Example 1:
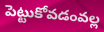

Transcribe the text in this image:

పెట్టుకోవడంవల్ల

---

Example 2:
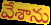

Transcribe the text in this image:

వేశాను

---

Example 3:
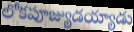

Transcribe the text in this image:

లోకపూజ్యుడయ్యాడు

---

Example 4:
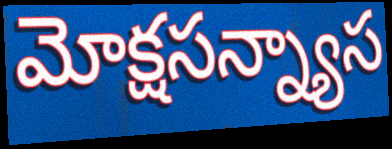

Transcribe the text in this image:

మోక్షసన్న్యాస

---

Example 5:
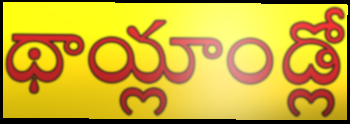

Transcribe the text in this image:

థాయ్లాండ్లో